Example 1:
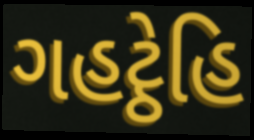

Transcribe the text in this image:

ગહટ્ઠેહિ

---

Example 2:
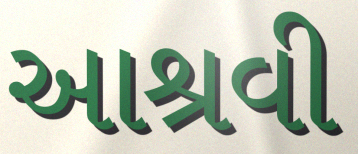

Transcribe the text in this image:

આશ્રવી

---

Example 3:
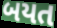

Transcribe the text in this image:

બયત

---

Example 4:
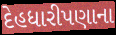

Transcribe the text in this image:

દેહધારીપણાના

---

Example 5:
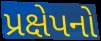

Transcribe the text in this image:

પ્રક્ષેપનો